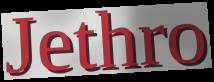
Jethro